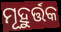
ମୂହୁର୍ତ୍ତକ